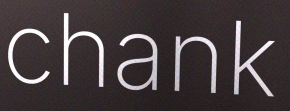
chank